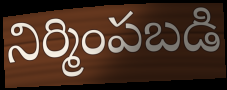
నిర్మింపబడి